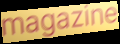
magazine